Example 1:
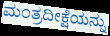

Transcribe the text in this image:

ಮಂತ್ರದೀಕ್ಷೆಯನ್ನು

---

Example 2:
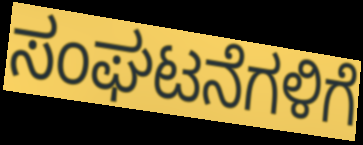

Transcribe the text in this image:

ಸಂಘಟನೆಗಳಿಗೆ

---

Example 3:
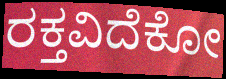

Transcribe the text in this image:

ರಕ್ತವಿದೆಕೋ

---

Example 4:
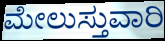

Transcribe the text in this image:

ಮೇಲುಸ್ತುವಾರಿ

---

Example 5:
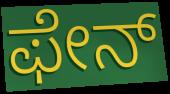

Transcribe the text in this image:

ಫೇನ್